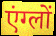
एंग्लों